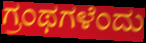
ಗ್ರಂಥಗಳೆಂದು